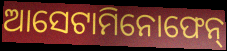
ଆସେଟାମିନୋଫେନ୍